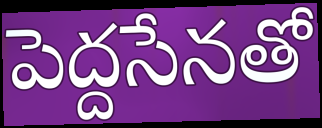
పెద్దసేనతో